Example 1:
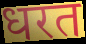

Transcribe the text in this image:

धरत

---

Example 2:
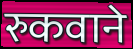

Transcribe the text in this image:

रुकवाने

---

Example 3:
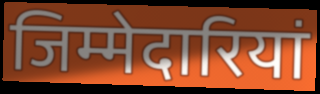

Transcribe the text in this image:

जिम्मेदारियां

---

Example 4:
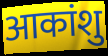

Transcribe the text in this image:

आकांशु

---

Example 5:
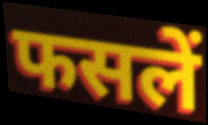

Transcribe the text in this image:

फसलें